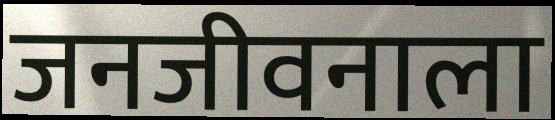
जनजीवनाला